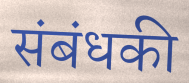
संबंधकी